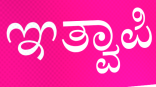
ಞತ್ವಾಪಿ